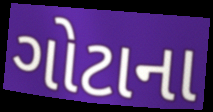
ગોટાના